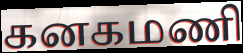
கனகமணி